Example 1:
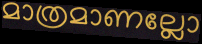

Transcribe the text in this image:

മാത്രമാണല്ലോ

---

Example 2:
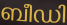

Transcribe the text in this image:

ബീഡി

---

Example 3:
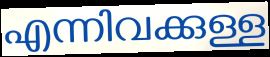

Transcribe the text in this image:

എന്നിവക്കുള്ള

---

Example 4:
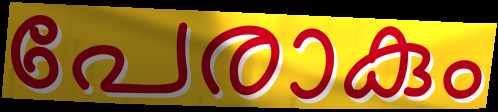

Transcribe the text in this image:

പേരാകും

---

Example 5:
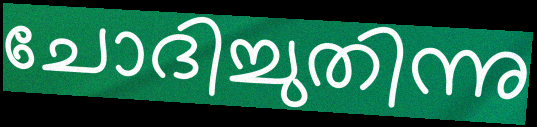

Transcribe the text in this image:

ചോദിച്ചുതിന്നു